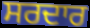
ਸਰਦਾਰ